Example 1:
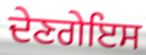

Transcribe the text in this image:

ਦੇਣਗੇਇਸ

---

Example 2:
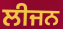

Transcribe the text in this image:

ਲੀਜਨ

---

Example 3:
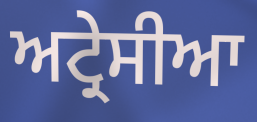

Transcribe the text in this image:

ਅਟ੍ਰੇਸੀਆ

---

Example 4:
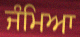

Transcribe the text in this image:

ਜੰਮਿਆ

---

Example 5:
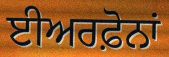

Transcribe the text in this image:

ਈਅਰਫ਼ੋਨਾਂ